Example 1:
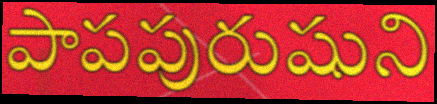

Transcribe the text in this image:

పాపపురుషుని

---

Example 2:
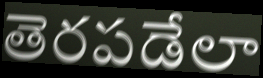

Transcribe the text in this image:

తెరపడేలా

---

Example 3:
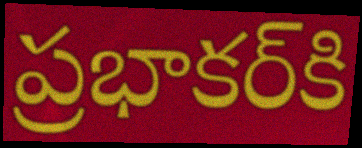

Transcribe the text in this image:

ప్రభాకర్‌కి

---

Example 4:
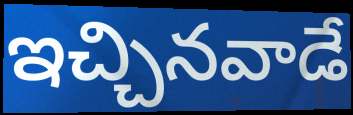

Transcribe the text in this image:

ఇచ్చినవాడే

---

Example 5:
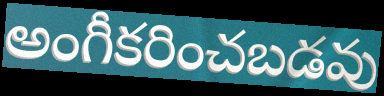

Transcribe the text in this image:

అంగీకరించబడవు